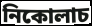
নিকোলাচ